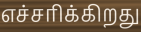
எச்சரிக்கிறது